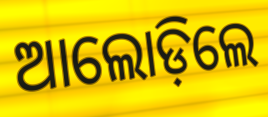
ଆଲୋଡ଼ିଲେ